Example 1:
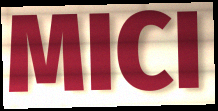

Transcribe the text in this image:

MICI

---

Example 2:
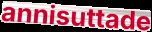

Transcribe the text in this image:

annisuttade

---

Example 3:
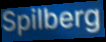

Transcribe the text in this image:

Spilberg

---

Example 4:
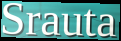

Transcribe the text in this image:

Srauta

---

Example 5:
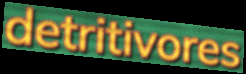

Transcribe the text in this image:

detritivores